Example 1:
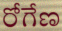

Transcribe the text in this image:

రోగేణ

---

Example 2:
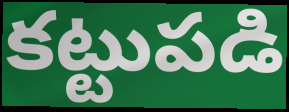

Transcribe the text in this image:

కట్టుపడి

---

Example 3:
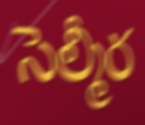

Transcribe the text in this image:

సెల్మీర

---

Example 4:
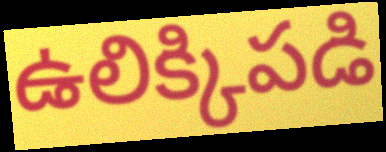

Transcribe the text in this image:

ఉలిక్కిపడి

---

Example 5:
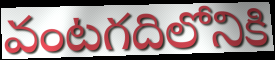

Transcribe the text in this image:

వంటగదిలోనికి